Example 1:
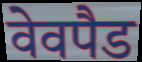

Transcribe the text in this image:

वेवपैड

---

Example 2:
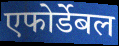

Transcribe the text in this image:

एफोर्डेबल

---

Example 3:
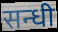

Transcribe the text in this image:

सन्धी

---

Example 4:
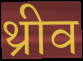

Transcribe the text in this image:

थ्रीव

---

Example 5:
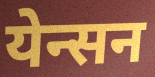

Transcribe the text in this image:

येन्सन